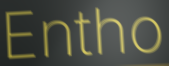
Entho